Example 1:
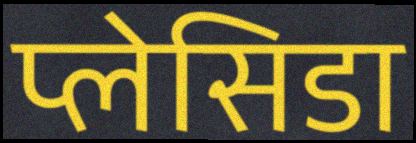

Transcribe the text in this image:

प्लेसिडा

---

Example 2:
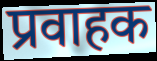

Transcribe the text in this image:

प्रवाहक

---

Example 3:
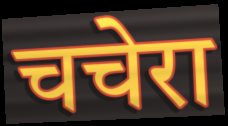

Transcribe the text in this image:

चचेरा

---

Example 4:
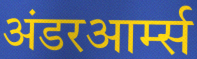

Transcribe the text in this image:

अंडरआर्म्‍स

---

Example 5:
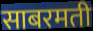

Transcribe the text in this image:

साबरमती